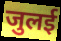
जुलई